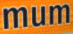
mum